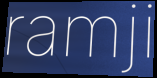
ramji